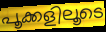
പൂക്കളിലൂടെ